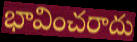
భావించరాదు